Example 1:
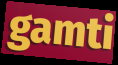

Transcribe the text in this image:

gamti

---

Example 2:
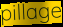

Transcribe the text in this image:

pillage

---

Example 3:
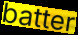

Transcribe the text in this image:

batter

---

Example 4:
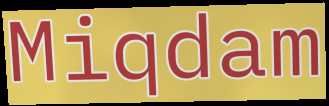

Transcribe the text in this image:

Miqdam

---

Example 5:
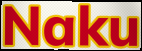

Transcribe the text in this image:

Naku